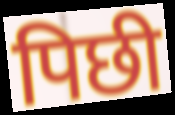
पिछी